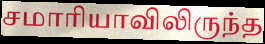
சமாரியாவிலிருந்த